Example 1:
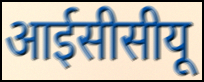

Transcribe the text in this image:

आईसीसीयू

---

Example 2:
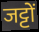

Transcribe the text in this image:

जट्टों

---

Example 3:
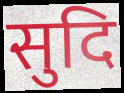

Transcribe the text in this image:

सुदि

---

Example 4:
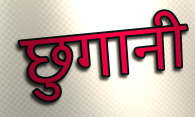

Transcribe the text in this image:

छुगानी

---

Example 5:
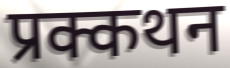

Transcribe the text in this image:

प्रक्कथन